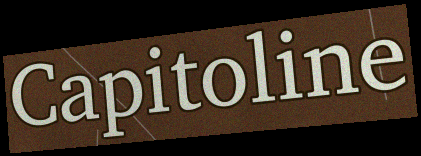
Capitoline